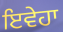
ਇਵੇਹਾ